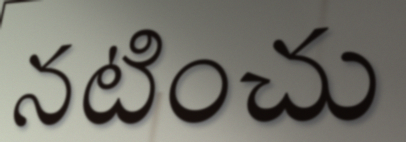
నటించు